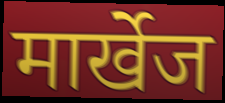
मार्खेज